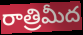
రాత్రిమీద